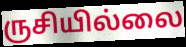
ருசியில்லை